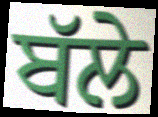
ਬੱਲੇ